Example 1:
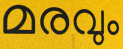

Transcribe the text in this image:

മരവും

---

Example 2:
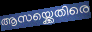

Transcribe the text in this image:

ആസയ്ക്കെതിരെ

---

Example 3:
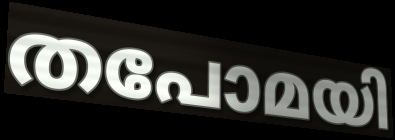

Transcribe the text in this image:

തപോമയി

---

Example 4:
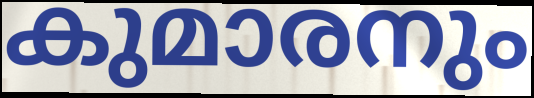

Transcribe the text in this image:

കുമാരനും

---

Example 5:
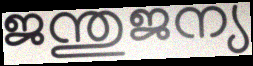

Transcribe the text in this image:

ജന്തുജന്യ